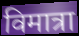
विमात्रा